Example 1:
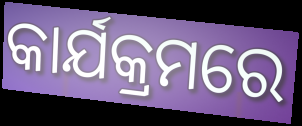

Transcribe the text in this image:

କାର୍ଯକ୍ରମରେ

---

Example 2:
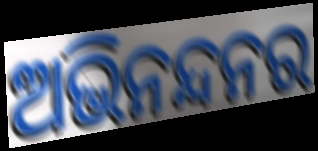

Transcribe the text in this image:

ଅଭିନନ୍ଦନର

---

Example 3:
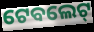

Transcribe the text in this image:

ଟେବଲେଟ୍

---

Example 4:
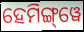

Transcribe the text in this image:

ହେମିଙ୍ଗ୍‌ୱେ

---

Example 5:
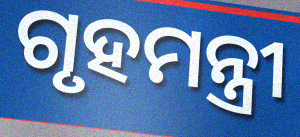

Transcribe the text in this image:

ଗୃହମନ୍ତ୍ରୀ